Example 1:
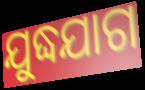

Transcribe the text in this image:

ଯୁଦ୍ଧଯାଗ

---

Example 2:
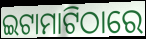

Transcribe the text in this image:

ଇଟାମାଟିଠାରେ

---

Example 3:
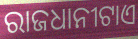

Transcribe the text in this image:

ରାଜଧାନୀଟାଏ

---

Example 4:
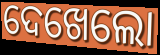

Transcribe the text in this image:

ଦେଖେଲୋ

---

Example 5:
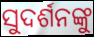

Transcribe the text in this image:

ସୁଦର୍ଶନଙ୍କୁ